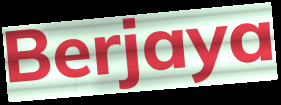
Berjaya